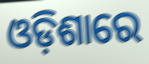
ଓଡ଼ିଶାରେ